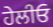
ਹੇਲੀਓ